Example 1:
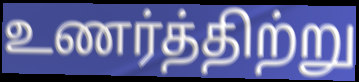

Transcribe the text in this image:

உணர்த்திற்று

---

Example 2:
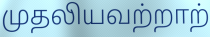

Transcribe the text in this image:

முதலியவற்றாற்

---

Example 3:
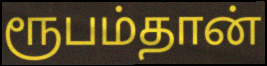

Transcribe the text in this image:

ரூபம்தான்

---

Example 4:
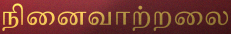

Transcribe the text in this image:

நினைவாற்றலை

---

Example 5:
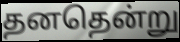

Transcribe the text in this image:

தனதென்று